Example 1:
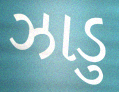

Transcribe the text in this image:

ઝાડુ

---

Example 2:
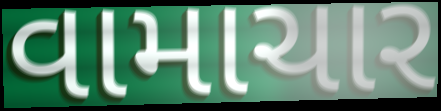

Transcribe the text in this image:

વામાચાર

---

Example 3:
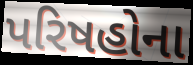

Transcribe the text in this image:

પરિષહોના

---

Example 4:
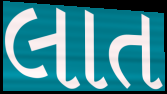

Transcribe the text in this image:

લાત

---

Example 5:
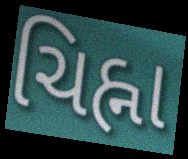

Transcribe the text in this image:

ચિહ્ના